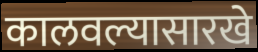
कालवल्यासारखे